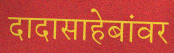
दादासाहेबांवर